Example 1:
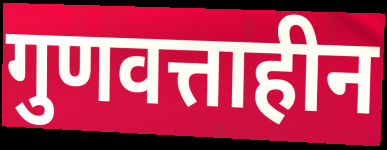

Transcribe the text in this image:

गुणवत्ताहीन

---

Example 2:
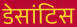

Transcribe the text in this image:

डेसांटिस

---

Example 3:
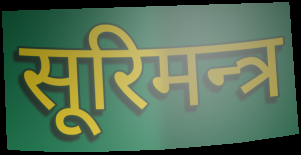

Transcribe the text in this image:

सूरिमन्त्र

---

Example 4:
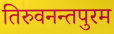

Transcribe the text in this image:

तिरुवनन्तपुरम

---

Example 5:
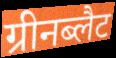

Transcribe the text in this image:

ग्रीनब्लैट